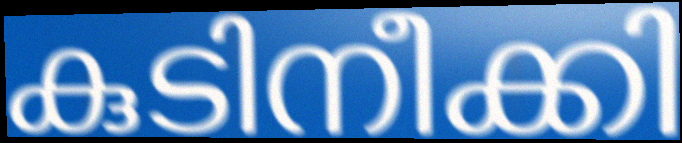
കുടിനീക്കി